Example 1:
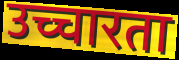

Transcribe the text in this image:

उच्चारता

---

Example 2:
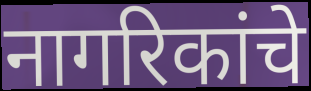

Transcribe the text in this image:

नागरिकांचे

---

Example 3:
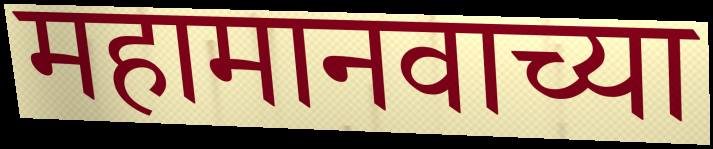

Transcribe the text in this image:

महामानवाच्या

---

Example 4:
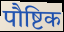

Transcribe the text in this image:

पौष्टिक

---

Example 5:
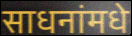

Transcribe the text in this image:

साधनांमधे